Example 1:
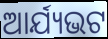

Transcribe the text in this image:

ଆର୍ଯ୍ୟଭଟ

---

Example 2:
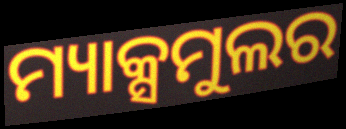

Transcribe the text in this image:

ମ୍ୟାକ୍ସମୁଲର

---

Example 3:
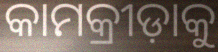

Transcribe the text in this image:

କାମକ୍ରୀଡ଼ାକୁ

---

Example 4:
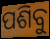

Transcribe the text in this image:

ପଶିବୁ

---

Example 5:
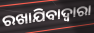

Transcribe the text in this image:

ରଖାଯିବାଦ୍ଵାରା